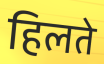
हिलते